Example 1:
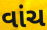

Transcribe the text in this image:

વાંચ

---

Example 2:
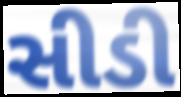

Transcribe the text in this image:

સીડી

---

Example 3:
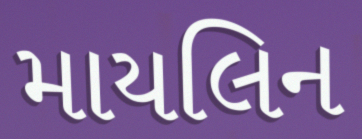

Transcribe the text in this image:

માયલિન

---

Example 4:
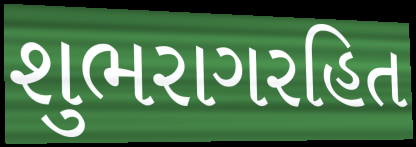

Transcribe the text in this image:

શુભરાગરહિત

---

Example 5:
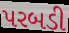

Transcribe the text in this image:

પરબડી